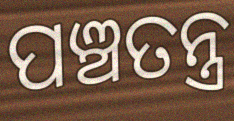
ପଞ୍ଚତନ୍ତ୍ର